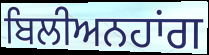
ਬਿਲੀਅਨਹਾਂਗ